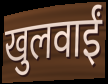
खुलवाईं